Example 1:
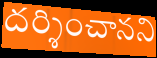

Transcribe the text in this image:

దర్శించానని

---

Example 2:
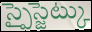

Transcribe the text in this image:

స్పైస్జెట్కు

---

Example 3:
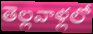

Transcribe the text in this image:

తెల్లవాళ్లలో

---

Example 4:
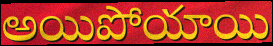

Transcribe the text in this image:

అయిపోయాయి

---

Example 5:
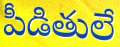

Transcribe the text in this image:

పీడితులే